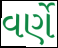
વર્ણે